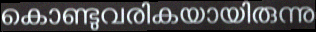
കൊണ്ടുവരികയായിരുന്നു